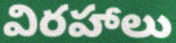
విరహాలు